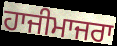
ਹਾਜੀਮਾਜਰਾ